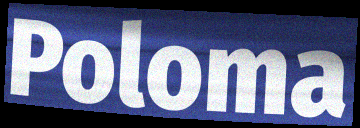
Poloma